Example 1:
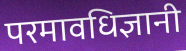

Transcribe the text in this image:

परमावधिज्ञानी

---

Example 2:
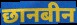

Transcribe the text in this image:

छानबीन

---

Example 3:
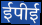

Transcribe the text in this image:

ईपीई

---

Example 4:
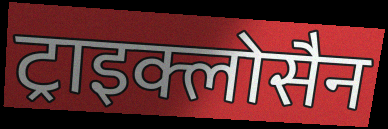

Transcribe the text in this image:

ट्राइक्लोसैन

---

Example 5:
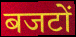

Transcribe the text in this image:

बजटों